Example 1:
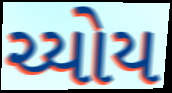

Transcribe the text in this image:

ચ્યોય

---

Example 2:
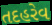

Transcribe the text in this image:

તદહરેવ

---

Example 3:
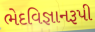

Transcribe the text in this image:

ભેદવિજ્ઞાનરૂપી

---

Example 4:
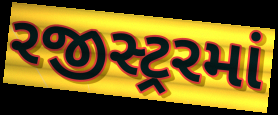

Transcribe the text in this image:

રજીસ્ટ્રરમાં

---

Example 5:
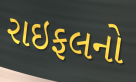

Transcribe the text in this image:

રાઇફલનો